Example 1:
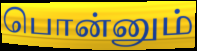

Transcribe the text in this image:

பொன்னும்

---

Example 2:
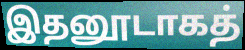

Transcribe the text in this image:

இதனூடாகத்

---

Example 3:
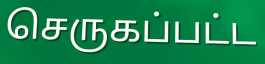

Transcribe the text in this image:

செருகப்பட்ட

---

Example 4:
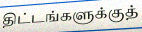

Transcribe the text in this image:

திட்டங்களுக்குத்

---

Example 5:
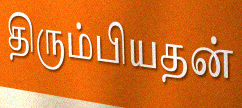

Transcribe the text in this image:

திரும்பியதன்